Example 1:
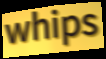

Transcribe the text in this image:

whips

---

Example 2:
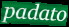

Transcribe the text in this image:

padato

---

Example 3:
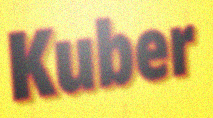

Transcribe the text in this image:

Kuber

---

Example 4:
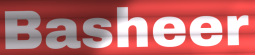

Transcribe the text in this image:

Basheer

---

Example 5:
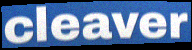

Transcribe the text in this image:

cleaver